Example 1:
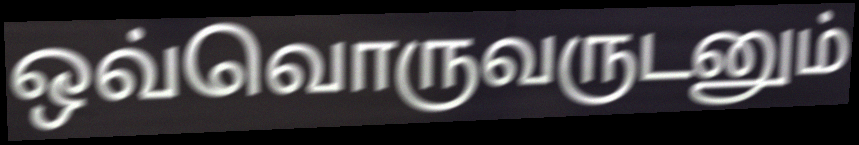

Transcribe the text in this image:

ஒவ்வொருவருடனும்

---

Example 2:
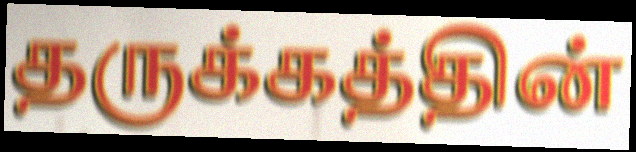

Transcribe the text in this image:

தருக்கத்தின்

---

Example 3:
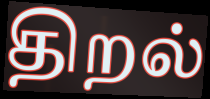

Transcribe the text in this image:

திறல்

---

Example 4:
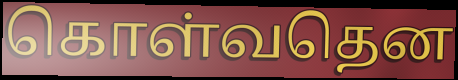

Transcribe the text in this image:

கொள்வதென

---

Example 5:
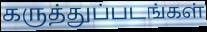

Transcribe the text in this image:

கருத்துப்படங்கள்